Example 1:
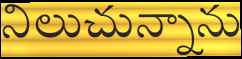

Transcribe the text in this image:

నిలుచున్నాను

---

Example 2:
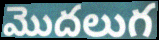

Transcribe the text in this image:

మొదలుగ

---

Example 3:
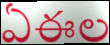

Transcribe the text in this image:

ఏఈల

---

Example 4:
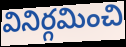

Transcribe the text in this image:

వినిర్గమించి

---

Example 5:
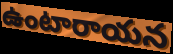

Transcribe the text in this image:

ఉంటారాయన